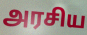
அரசிய